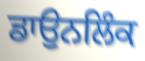
ਡਾਉਨਲਿੰਕ